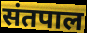
संतपाल